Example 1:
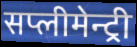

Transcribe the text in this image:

सप्लीमेन्ट्री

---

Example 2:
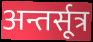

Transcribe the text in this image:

अन्तर्सूत्र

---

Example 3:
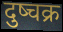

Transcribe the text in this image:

दुष्चक्र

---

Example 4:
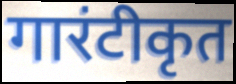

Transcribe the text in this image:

गारंटीकृत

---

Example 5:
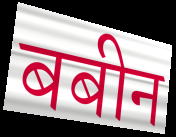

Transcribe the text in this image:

बबीन